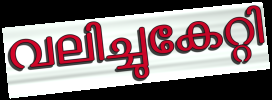
വലിച്ചുകേറ്റി